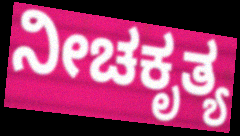
ನೀಚಕೃತ್ಯ